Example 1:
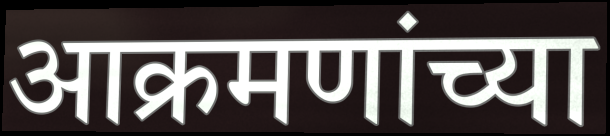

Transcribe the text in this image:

आक्रमणांच्या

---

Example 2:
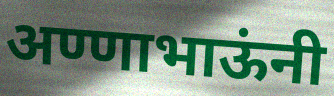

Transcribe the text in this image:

अण्णाभाऊंनी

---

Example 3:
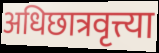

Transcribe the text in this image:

अधिछात्रवृत्त्या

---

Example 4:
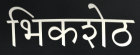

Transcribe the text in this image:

भिकशेठ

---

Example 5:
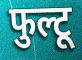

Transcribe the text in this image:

फुल्टू